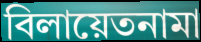
বিলায়েতনামা